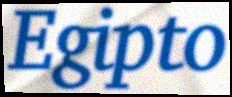
Egipto